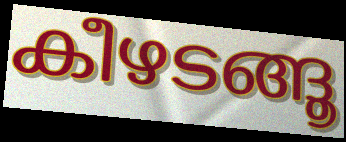
കീഴടങ്ങൂ